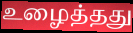
உழைத்தது